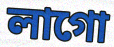
লাগো